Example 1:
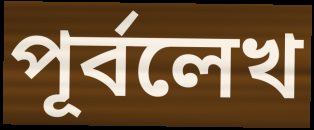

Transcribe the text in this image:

পূর্বলেখ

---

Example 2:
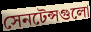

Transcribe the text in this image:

সেনটেন্সগুলো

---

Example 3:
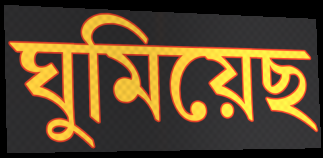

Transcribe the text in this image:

ঘুমিয়েছ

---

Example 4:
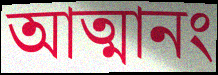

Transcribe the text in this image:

আত্মানং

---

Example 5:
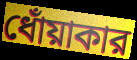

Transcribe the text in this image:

ধোঁয়াকার